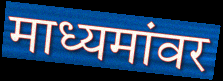
माध्यमांवर